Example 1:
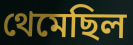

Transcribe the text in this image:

থেমেছিল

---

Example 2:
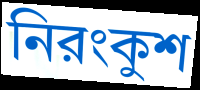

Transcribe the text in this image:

নিরংকুশ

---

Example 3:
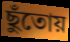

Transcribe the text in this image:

ছুঁতোয়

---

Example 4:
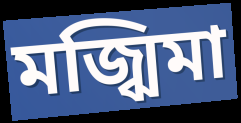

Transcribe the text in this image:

মজ্ঝিমা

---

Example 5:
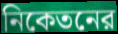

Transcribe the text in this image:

নিকেতনের